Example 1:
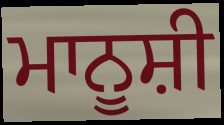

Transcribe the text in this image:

ਮਾਨੂਸ਼ੀ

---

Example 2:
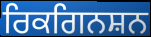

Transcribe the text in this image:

ਰਿਕਗਿਨਸ਼ਨ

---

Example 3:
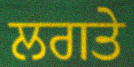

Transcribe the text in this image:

ਲਗਤੇ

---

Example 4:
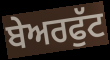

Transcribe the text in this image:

ਬੇਅਰਫੁੱਟ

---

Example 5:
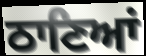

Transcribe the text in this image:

ਠਾਣਿਆਂ